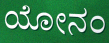
ಯೋನಂ